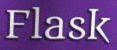
Flask